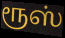
ரூஸ்